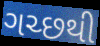
ગચ્છથી